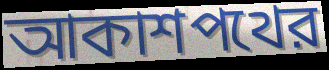
আকাশপথের